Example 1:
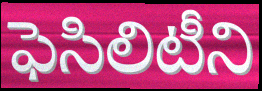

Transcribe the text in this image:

ఫెసిలిటీని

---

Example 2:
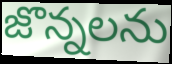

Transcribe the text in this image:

జొన్నలను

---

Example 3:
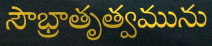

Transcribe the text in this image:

సౌభ్రాతృత్వమును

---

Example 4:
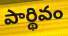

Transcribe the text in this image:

పార్థివం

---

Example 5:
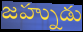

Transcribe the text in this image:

జహ్నుడు